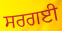
ਸਰਗਈ